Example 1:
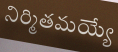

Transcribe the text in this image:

నిర్మితమయ్యే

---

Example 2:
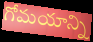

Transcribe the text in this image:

గోమయాన్ని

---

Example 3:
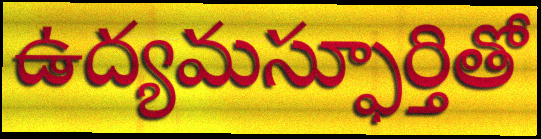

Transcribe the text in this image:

ఉద్యమస్ఫూర్తితో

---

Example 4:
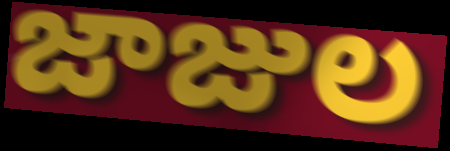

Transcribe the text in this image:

జాజుల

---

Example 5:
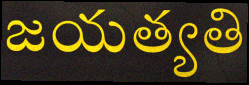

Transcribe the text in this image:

జయత్యతి